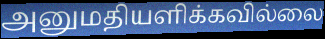
அனுமதியளிக்கவில்லை